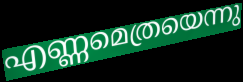
എണ്ണമെത്രയെന്നു